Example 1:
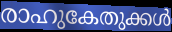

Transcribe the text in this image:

രാഹുകേതുക്കൾ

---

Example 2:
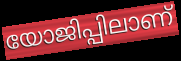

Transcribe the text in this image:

യോജിപ്പിലാണ്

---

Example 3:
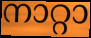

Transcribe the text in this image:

നാറ്റാ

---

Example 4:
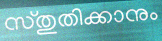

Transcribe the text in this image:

സ്തുതിക്കാനും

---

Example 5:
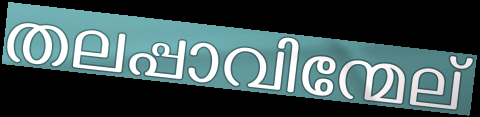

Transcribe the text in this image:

തലപ്പാവിന്മേല്